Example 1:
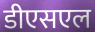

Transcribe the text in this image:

डीएसएल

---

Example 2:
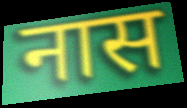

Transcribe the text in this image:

नास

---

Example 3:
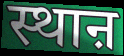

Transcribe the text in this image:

स्थाऩ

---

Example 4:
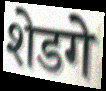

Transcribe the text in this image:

शेडगे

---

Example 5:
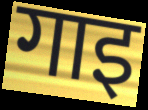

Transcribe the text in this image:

गाइ